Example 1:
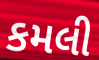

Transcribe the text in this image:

કમલી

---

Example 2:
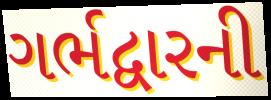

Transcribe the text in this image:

ગર્ભદ્વારની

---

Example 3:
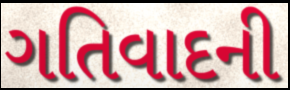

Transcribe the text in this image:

ગતિવાદની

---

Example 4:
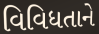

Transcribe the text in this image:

વિવિધતાને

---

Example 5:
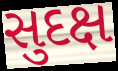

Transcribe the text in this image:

સુદક્ષ